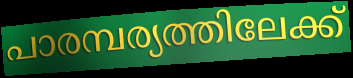
പാരമ്പര്യത്തിലേക്ക്